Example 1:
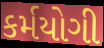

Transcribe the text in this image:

કર્મયોગી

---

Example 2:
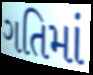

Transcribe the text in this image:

ગતિમાં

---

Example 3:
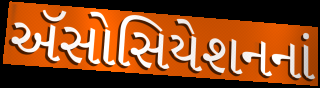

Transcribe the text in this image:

ઍસોસિયેશનનાં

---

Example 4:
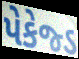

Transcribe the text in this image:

પેકેજ્ડ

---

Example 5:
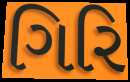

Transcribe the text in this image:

ગિરિ